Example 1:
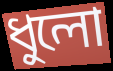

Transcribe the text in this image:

ধুলো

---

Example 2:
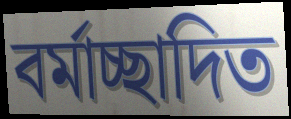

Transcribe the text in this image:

বর্মাচ্ছাদিত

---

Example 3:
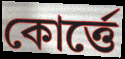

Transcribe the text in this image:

কোর্ত্তে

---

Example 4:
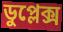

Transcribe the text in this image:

ডুপ্লেক্স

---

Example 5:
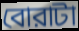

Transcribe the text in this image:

বোরাটা